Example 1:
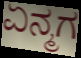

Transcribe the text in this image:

ಏನ್ಮಗ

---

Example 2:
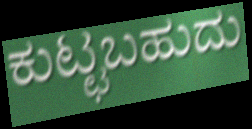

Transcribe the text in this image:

ಕುಟ್ಟಬಹುದು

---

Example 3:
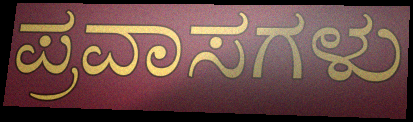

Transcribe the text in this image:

ಪ್ರವಾಸಗಳು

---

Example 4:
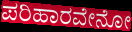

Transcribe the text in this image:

ಪರಿಹಾರವೇನೋ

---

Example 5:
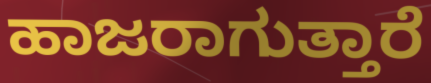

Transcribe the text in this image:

ಹಾಜರಾಗುತ್ತಾರೆ